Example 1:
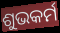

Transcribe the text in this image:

ଶୁଭକର୍ମ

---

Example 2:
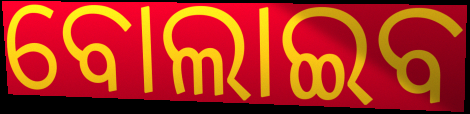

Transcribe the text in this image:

ବୋଲାଇବ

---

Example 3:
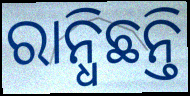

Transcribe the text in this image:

ରାନ୍ଧିଛନ୍ତି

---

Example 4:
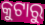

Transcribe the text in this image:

କୁଟାରୁ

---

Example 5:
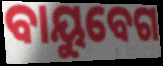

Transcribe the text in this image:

ବାୟୁବେଗ